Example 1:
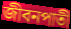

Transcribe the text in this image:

জীবনপাতী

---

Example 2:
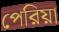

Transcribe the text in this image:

পেরিয়া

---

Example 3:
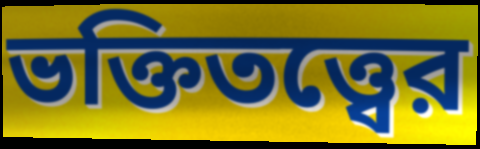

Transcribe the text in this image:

ভক্তিতত্ত্বের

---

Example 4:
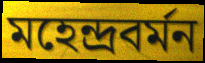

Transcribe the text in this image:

মহেন্দ্রবর্মন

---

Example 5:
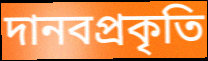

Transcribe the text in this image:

দানবপ্রকৃতি